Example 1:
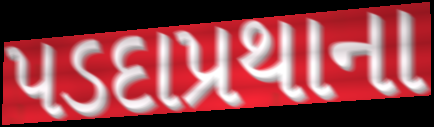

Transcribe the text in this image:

પડદાપ્રથાના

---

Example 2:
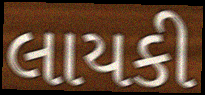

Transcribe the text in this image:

લાયકી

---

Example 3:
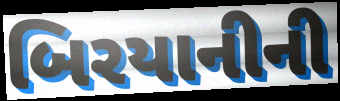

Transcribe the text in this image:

બિરયાનીની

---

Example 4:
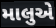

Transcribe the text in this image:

માલુએ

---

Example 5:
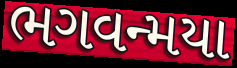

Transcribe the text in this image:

ભગવન્મયા